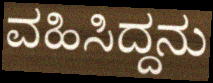
ವಹಿಸಿದ್ದನು